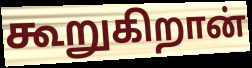
கூறுகிறான்